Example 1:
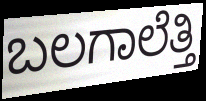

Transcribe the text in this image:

ಬಲಗಾಲೆತ್ತಿ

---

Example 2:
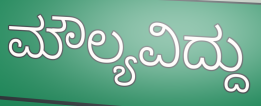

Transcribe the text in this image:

ಮೌಲ್ಯವಿದ್ದು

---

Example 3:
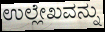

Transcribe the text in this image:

ಉಲ್ಲೇಖವನ್ನು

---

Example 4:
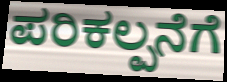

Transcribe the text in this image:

ಪರಿಕಲ್ಪನೆಗೆ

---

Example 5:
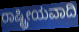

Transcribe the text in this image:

ರಾಷ್ಟ್ರೀಯವಾದಿ